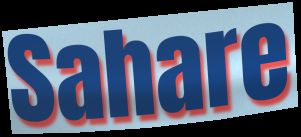
Sahare